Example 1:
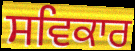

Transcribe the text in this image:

ਸਵਿਕਾਰ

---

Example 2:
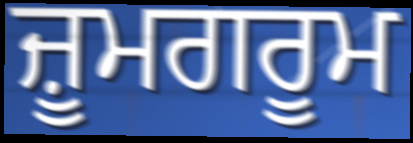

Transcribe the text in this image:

ਜ਼ੂਮਗਰੂਮ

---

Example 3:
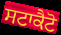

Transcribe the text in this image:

ਸਟਾਕੈਟੋ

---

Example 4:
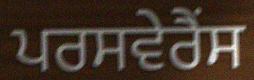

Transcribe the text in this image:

ਪਰਸਵੇਰੈਂਸ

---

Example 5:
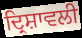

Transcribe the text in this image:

ਦ੍ਰਿਸ਼ਾਵਲੀ